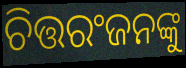
ଚିତ୍ତରଂଜନଙ୍କୁ